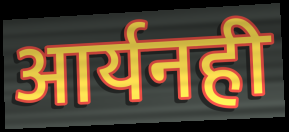
आर्यनही